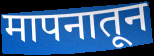
मापनातून